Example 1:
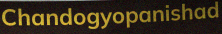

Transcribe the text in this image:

Chandogyopanishad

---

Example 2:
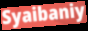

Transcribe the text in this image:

Syaibaniy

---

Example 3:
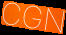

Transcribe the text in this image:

CGN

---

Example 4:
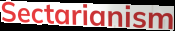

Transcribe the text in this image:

Sectarianism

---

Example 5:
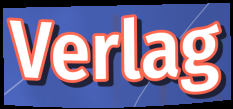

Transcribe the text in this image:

Verlag